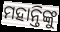
ମହାନ୍ତିଙ୍କୁ